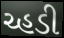
ચ્હડી